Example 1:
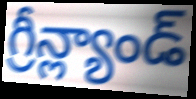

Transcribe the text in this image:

గ్రీన్ల్యాండ్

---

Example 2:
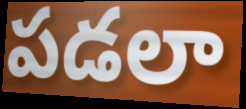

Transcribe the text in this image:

పడలా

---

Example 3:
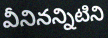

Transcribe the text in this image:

వీనినన్నిటిని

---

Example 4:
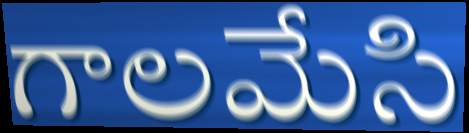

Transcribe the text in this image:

గాలమేసి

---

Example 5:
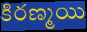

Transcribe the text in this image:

కిరణ్మయి